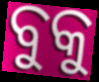
ବୁକୁ